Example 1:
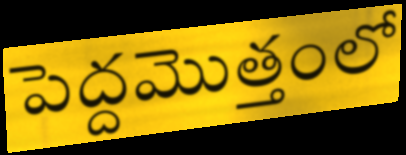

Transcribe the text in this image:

పెద్దమొత్తంలో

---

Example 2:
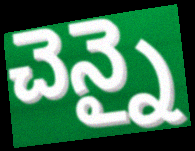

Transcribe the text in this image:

చెన్నై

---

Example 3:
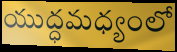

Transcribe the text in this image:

యుద్ధమధ్యంలో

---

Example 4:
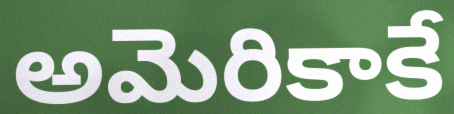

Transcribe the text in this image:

అమెరికాకే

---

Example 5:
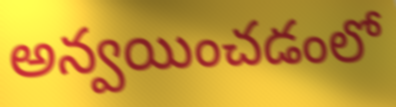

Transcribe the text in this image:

అన్వయించడంలో